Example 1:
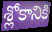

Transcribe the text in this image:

శ్లోకానికి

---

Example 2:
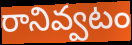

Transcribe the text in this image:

రానివ్వటం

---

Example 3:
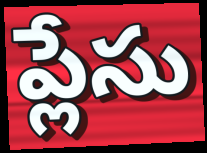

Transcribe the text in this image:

ప్లేసు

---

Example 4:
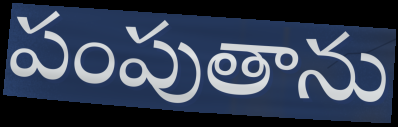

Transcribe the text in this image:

పంపుతాను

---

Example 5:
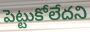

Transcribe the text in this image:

పెట్టుకోలేదని